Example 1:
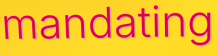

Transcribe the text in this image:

mandating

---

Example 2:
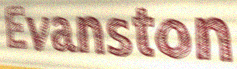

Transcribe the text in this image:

Evanston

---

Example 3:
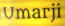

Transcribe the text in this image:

Umarji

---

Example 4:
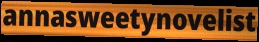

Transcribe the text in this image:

annasweetynovelist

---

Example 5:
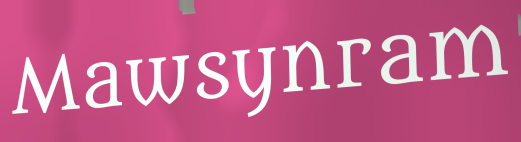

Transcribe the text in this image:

Mawsynram